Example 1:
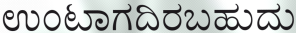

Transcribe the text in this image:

ಉಂಟಾಗದಿರಬಹುದು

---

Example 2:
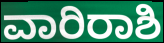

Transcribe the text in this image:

ವಾರಿರಾಶಿ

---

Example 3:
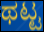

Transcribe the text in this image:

ಥಟ್ಟ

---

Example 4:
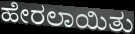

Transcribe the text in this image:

ಹೇರಲಾಯಿತು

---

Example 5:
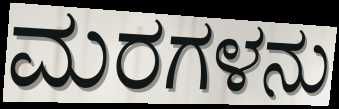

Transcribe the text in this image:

ಮರಗಳನು